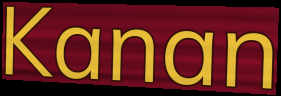
Kanan